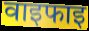
वाइफाइ